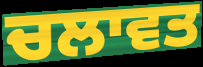
ਚਲਾਵਤ